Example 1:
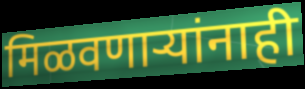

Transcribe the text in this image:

मिळवणाऱ्यांनाही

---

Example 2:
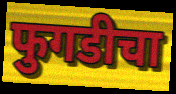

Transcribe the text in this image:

फुगडीचा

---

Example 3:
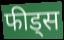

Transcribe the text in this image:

फीड्स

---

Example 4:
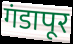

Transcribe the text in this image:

गंडापूर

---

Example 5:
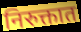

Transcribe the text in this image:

निरुक्तात